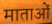
माताओं